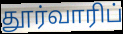
தூர்வாரிப்